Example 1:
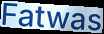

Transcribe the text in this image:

Fatwas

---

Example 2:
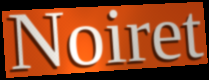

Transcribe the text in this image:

Noiret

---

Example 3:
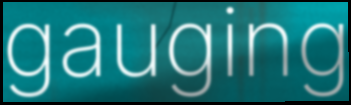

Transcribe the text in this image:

gauging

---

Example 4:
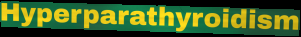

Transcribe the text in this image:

Hyperparathyroidism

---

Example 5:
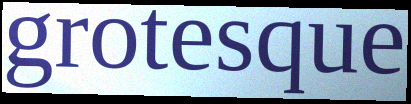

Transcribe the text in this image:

grotesque